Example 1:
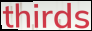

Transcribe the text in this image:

thirds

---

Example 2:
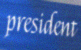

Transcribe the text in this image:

president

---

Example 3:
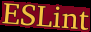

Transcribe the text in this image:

ESLint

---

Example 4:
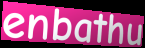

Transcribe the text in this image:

enbathu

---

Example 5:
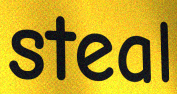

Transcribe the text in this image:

steal